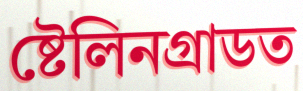
ষ্টেলিনগ্ৰাডত